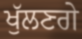
ਖੁੱਲਣਗੇ